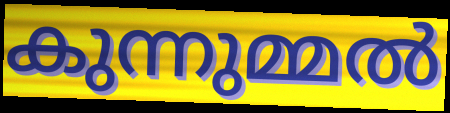
കുന്നുമ്മൽ